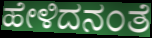
ಹೇಳಿದನಂತೆ